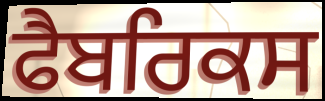
ਫੈਬਰਿਕਸ